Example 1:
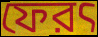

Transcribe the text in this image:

ফেরৎ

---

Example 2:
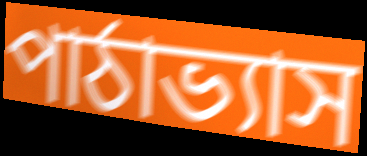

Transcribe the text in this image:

পাঠাভ্যাস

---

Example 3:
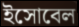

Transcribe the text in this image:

ইসোবেল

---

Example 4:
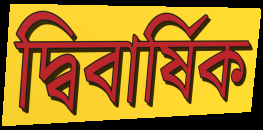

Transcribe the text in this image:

দ্বিবার্ষিক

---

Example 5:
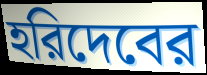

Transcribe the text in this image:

হরিদেবের